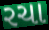
રચા